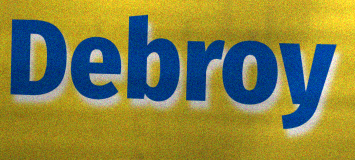
Debroy